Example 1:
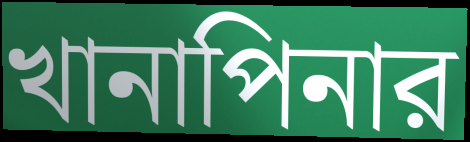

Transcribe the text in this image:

খানাপিনার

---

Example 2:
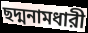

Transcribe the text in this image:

ছদ্মনামধারী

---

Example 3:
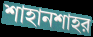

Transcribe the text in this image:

শাহানশাহর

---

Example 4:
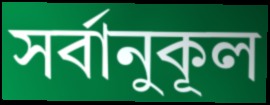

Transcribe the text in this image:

সর্বানুকূল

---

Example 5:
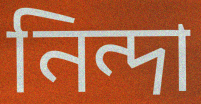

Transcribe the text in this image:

নিন্দা